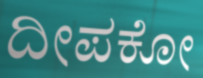
ದೀಪಕೋ